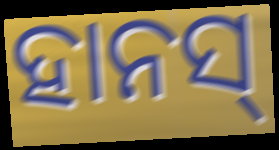
ହାନସ୍